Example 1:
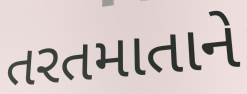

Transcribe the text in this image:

તરતમાતાને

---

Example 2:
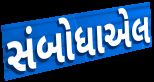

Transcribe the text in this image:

સંબોધાએલ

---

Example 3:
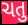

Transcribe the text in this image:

ચતુ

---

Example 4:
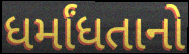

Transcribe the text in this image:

ધર્માંધતાનો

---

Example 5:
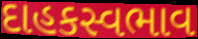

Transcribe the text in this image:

દાહકસ્વભાવ